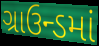
ગ્રાઉન્ડમાં